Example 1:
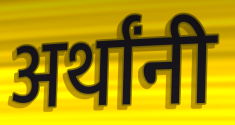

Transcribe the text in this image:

अर्थांनी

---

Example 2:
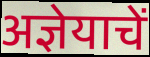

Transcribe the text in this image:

अज्ञेयाचें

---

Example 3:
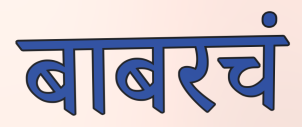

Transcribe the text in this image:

बाबरचं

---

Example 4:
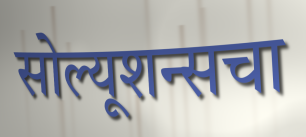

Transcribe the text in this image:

सोल्यूशन्सचा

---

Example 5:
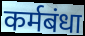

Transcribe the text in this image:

कर्मबंधा